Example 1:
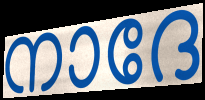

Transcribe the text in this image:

നാദേ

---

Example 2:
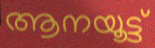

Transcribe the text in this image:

ആനയൂട്ട്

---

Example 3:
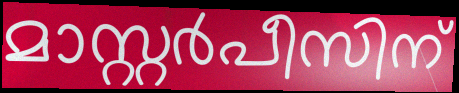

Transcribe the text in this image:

മാസ്റ്റർപീസിന്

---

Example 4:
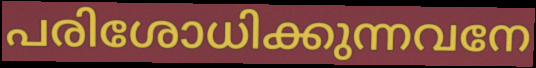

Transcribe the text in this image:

പരിശോധിക്കുന്നവനേ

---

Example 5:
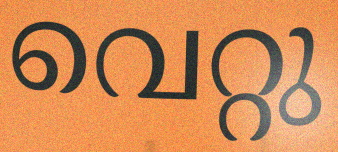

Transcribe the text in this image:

വെറ്റു